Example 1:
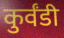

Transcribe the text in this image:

कुर्वंडी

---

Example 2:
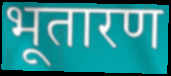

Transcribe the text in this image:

भूतारण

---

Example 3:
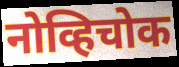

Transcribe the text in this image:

नोव्हिचोक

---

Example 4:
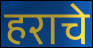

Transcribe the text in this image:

हराचे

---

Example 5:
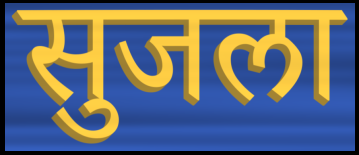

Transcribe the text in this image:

सुजला